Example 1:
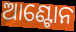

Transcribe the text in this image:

ଆଣ୍ଟୋନ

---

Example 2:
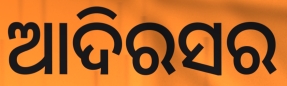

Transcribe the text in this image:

ଆଦିରସର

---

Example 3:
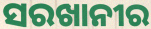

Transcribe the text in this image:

ସରଖାନୀର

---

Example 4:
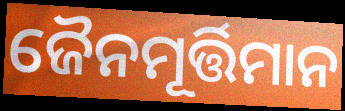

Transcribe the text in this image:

ଜୈନମୂର୍ତ୍ତିମାନ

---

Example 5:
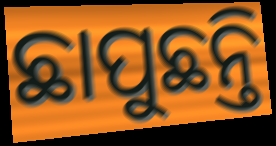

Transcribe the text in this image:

ଛାପୁଛନ୍ତି